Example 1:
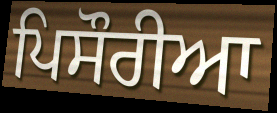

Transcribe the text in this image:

ਪਿਸੌਰੀਆ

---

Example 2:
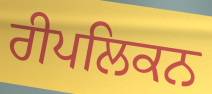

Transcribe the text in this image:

ਰੀਪਲਿਕਨ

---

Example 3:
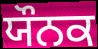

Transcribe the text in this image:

ਯੌਨਕ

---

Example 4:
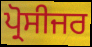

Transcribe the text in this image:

ਪ੍ਰੋਸੀਜਰ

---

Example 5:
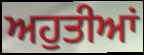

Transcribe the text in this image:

ਅਹੁਤੀਆਂ